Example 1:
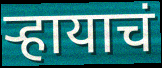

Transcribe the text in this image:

ऱ्हायाचं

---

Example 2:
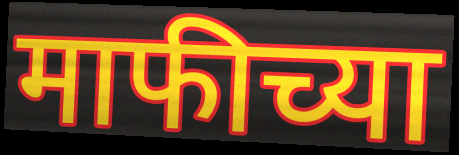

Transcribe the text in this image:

माफीच्या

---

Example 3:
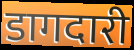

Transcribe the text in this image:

डागदारी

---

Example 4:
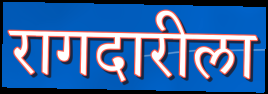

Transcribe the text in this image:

रागदारीला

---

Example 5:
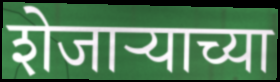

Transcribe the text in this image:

शेजार्‍याच्या